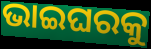
ଭାଇଘରକୁ